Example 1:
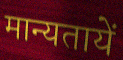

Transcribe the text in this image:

मान्यतायें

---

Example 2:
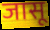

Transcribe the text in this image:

जासू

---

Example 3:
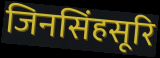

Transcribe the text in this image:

जिनसिंहसूरि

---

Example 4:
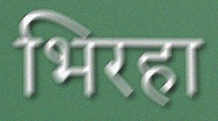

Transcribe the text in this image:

भिरहा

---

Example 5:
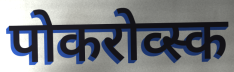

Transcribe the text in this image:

पोकरोव्स्क